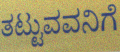
ತಟ್ಟುವವನಿಗೆ